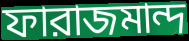
ফারাজমান্দ